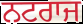
ਨਟਰਾਜ